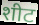
शीट